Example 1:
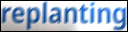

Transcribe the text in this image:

replanting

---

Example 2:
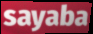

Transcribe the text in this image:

sayaba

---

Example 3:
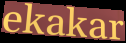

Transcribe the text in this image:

ekakar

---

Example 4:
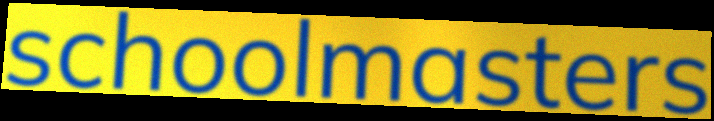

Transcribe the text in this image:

schoolmasters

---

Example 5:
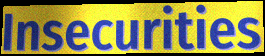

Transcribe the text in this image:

Insecurities